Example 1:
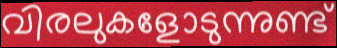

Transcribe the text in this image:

വിരലുകളോടുന്നുണ്ട്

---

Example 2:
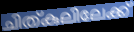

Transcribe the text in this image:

ചിത്കുലിലേക്ക്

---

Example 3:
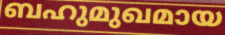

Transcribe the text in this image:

ബഹുമുഖമായ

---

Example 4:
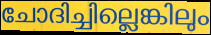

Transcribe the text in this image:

ചോദിച്ചില്ലെങ്കിലും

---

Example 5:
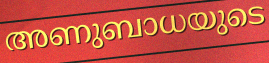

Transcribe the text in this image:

അണുബാധയുടെ